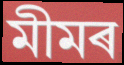
মীমৰ